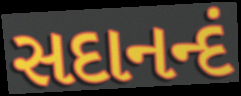
સદાનન્દં